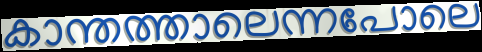
കാന്തത്താലെന്നപോലെ